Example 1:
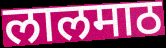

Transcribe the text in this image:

लालमाठ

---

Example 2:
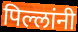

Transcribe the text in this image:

पिल्लांनी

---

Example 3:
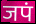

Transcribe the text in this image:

जपं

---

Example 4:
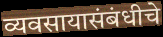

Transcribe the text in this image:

व्यवसायासंबंधीचे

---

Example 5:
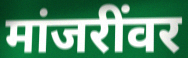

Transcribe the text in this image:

मांजरींवर